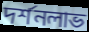
দর্শনলাভ